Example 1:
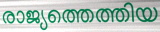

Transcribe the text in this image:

രാജ്യത്തെത്തിയ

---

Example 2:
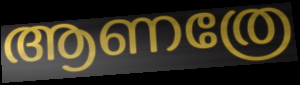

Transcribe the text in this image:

ആണത്രേ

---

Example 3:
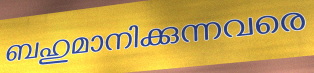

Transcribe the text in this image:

ബഹുമാനിക്കുന്നവരെ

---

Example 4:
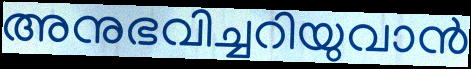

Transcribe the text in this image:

അനുഭവിച്ചറിയുവാൻ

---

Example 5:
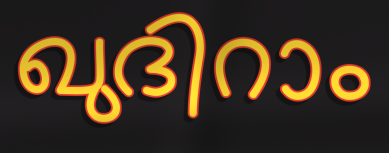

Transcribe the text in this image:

ഖുദിറാം